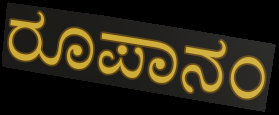
ರೂಪಾನಂ